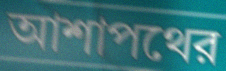
আশাপথের